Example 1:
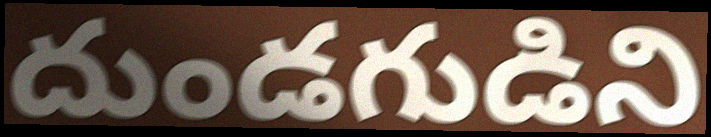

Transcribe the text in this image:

దుండగుడిని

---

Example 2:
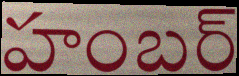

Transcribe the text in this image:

హంబర్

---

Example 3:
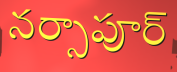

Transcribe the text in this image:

నర్సాపూర్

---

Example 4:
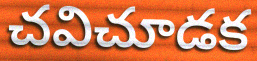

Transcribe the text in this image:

చవిచూడక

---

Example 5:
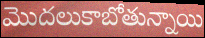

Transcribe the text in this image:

మొదలుకాబోతున్నాయి